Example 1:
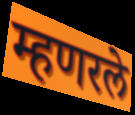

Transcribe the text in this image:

म्हणरले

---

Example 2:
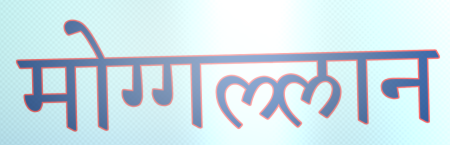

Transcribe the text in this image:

मोग्गल्लान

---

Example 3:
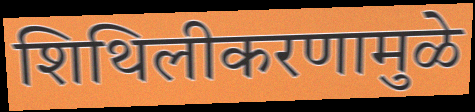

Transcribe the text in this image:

शिथिलीकरणामुळे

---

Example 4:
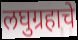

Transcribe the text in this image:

लघुग्रहाचे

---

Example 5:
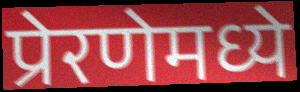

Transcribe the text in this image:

प्रेरणेमध्ये